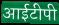
आईटीपी